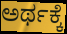
ಅರ್ಥಕ್ಕೆ